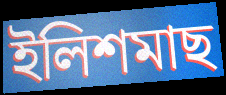
ইলিশমাছ